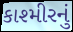
કાશ્મીરનું